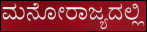
ಮನೋರಾಜ್ಯದಲ್ಲಿ